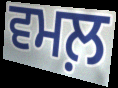
ਵਮਲ਼